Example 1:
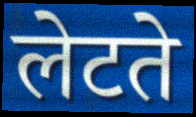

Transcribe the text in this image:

लेटते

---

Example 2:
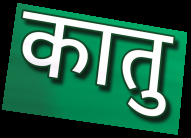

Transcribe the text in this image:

कातु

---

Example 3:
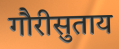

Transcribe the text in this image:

गौरीसुताय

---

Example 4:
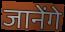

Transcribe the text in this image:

जानेंगे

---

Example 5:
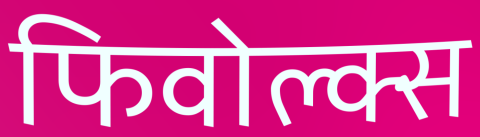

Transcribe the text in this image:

फिवोल्क्स